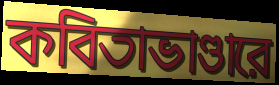
কবিতাভাণ্ডারে